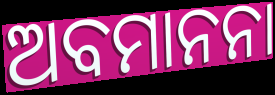
ଅବମାନନା